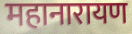
महानारायण